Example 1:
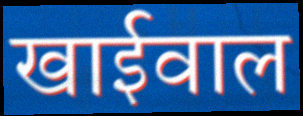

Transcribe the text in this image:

खाईवाल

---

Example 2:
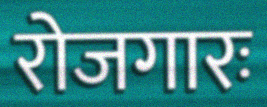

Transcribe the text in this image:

रोजगारः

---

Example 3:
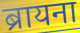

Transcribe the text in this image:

ब्रायना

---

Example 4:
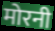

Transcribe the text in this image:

मोरनी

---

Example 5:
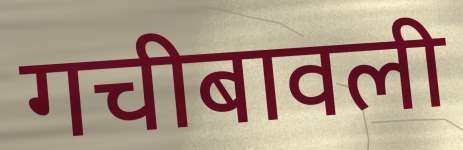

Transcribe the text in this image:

गचीबावली